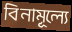
বিনামূল্যে